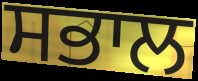
ਸਭਾਲ